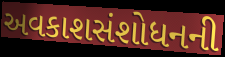
અવકાશસંશોધનની